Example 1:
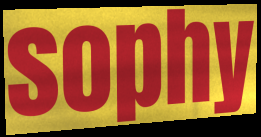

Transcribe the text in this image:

sophy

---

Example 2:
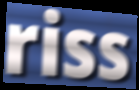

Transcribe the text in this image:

riss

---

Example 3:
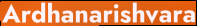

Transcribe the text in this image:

Ardhanarishvara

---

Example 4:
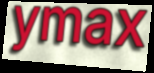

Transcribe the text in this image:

ymax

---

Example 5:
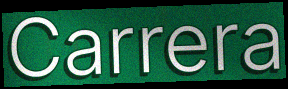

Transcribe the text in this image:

Carrera